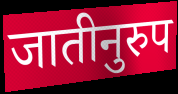
जातीनुरुप